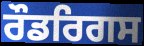
ਰੌਡਰਿਗਸ